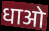
धाओ